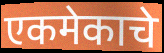
एकमेकाचे